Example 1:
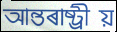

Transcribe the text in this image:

আন্তৰাষ্ট্ৰীয়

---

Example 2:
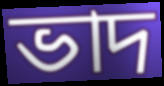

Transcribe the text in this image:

ভাদ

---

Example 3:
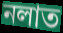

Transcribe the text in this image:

নলাত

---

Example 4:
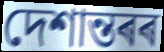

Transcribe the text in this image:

দেশান্তৰৰ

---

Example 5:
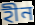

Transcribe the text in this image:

হীন